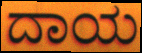
ದಾಯ